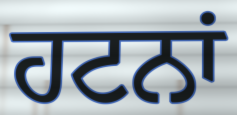
ਹਟਨਾਂ